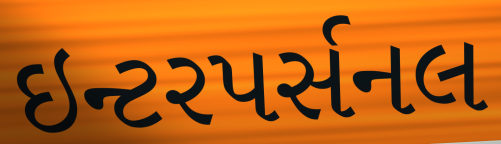
ઇન્ટરપર્સનલ